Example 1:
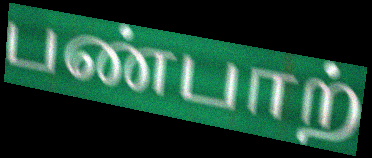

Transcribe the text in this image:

பண்பாற்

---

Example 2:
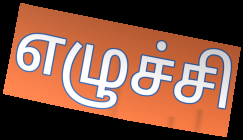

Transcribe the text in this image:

எழுச்சி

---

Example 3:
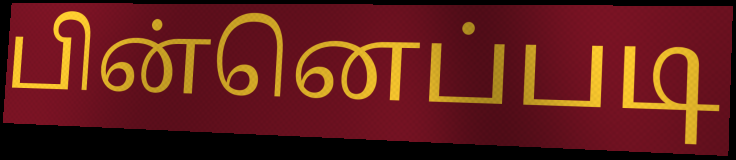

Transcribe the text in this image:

பின்னெப்படி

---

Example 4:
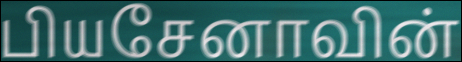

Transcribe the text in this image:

பியசேனாவின்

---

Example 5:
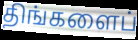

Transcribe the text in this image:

திங்களைப்